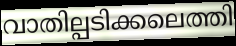
വാതില്പടിക്കലെത്തി